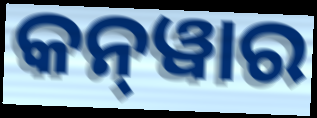
କନ୍‍ୱାର